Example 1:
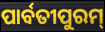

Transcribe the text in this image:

ପାର୍ବତୀପୁରମ୍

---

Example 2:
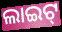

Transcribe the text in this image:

ଲାଇଟ୍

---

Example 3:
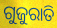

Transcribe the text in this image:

ଗୁଜୁରାତି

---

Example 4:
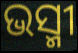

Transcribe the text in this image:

ଭସ୍ମୀ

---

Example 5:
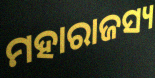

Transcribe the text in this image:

ମହାରାଜସ୍ୟ